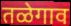
तळेगाव